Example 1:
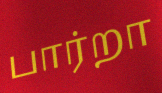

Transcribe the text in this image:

பார்றா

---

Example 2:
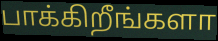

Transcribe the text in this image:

பாக்கிறீங்களா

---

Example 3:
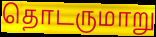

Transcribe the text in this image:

தொடருமாறு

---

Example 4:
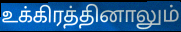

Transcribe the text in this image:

உக்கிரத்தினாலும்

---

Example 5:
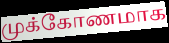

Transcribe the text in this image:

முக்கோணமாக